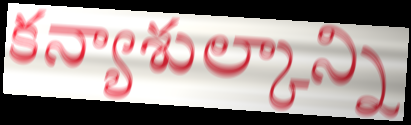
కన్యాశుల్కాన్ని